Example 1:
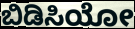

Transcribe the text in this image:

ಬಿಡಿಸಿಯೋ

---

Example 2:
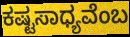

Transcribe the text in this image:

ಕಷ್ಟಸಾಧ್ಯವೆಂಬ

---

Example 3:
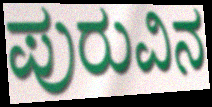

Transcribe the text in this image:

ಪುರುವಿನ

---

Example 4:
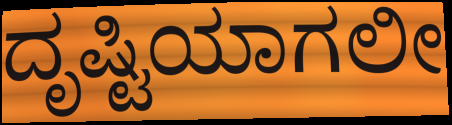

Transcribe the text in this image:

ದೃಷ್ಟಿಯಾಗಲೀ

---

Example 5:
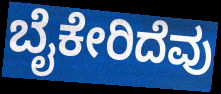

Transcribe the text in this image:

ಬೈಕೇರಿದೆವು